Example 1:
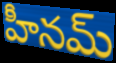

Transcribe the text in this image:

హీనమ్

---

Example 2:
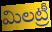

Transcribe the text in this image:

మిలట్రీ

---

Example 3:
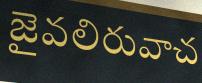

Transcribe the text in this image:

జైవలిరువాచ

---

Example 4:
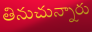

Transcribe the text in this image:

తినుచున్నారు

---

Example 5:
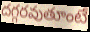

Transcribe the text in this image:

దగ్గరవుతూంటే